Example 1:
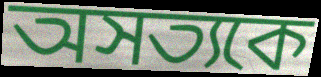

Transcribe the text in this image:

অসত্যকে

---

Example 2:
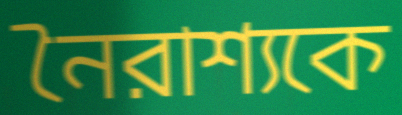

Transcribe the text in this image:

নৈরাশ্যকে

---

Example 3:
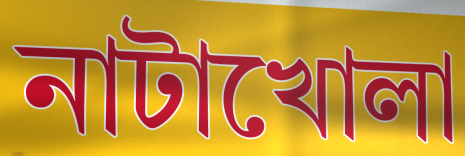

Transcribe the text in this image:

নাটাখোলা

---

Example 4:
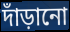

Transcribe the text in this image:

দাঁড়ানো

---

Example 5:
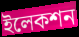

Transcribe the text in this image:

ইলেকশন